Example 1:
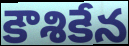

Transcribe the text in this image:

కౌశికేన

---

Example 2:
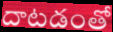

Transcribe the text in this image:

దాటడంతో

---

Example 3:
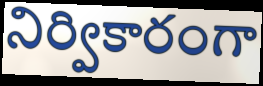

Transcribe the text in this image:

నిర్వికారంగా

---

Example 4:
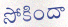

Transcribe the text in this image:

సోకిందా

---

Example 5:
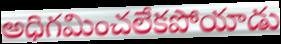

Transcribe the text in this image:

అధిగమించలేకపోయాడు